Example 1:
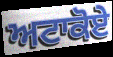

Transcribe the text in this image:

ਅਟਾਕੋਏ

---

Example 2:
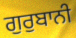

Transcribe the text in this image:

ਗੁਰੁਬਾਨੀ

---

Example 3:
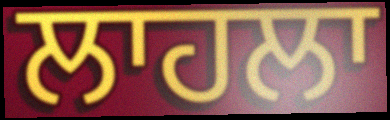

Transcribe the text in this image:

ਲਾਹਲਾ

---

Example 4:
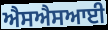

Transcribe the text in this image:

ਐਸਐਸਆਈ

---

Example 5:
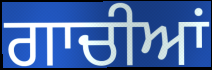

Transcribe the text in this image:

ਗਾਚੀਆਂ